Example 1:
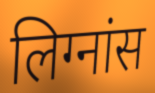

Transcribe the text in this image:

लिग्नांस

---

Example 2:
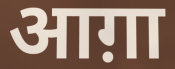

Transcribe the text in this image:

आग़ा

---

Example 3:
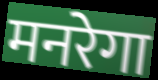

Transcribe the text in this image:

मनरेगा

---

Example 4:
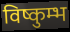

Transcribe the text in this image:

विष्कुम्भ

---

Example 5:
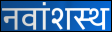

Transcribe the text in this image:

नवांशस्थ